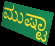
ಮುಷ್ಟಾ